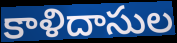
కాళిదాసుల